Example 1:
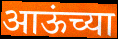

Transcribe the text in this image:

आऊंच्या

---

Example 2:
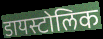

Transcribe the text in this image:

डायस्टोलिक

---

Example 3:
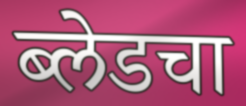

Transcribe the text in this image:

ब्लेडचा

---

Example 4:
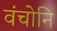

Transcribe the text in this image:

वंचोनि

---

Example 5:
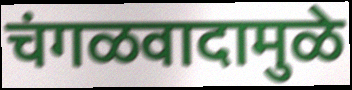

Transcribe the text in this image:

चंगळवादामुळे